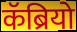
कॅब्रियो